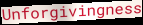
Unforgivingness